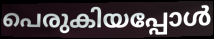
പെരുകിയപ്പോൾ